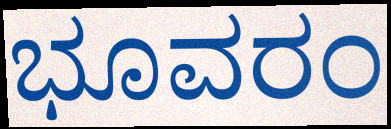
ಭೂವರಂ